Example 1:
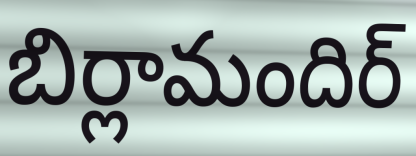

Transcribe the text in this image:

బిర్లామందిర్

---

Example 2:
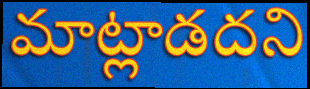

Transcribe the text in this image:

మాట్లాడదని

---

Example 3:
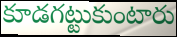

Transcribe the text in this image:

కూడగట్టుకుంటారు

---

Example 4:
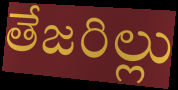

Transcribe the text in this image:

తేజరిల్లు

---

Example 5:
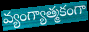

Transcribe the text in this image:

వ్యంగ్యాత్మకంగా